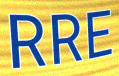
RRE